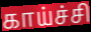
காய்ச்சி